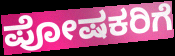
ಪೋಷಕರಿಗೆ